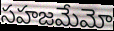
సహజమేమో